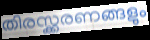
തിരസ്ക്കരണങ്ങളും